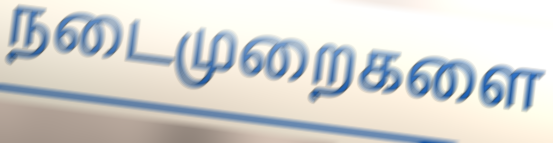
நடைமுறைகளை